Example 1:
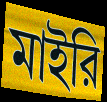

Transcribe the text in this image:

মাইরি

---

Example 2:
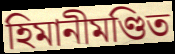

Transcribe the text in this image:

হিমানীমণ্ডিত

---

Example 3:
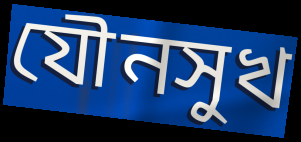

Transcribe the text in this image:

যৌনসুখ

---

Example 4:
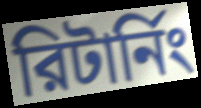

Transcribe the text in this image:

রিটার্নিং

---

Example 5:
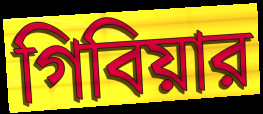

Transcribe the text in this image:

গিবিয়ার